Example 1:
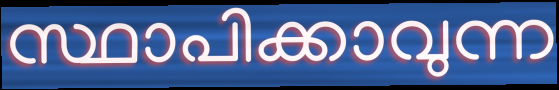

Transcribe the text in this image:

സ്ഥാപിക്കാവുന്ന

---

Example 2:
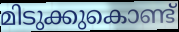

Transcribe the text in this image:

മിടുക്കുകൊണ്ട്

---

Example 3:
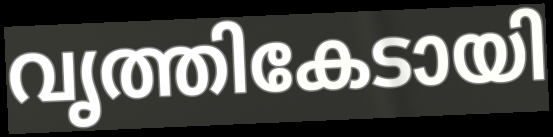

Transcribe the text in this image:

വൃത്തികേടായി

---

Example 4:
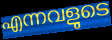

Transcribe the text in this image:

എന്നവളുടെ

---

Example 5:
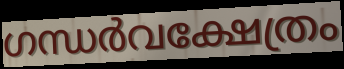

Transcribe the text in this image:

ഗന്ധർവക്ഷേത്രം